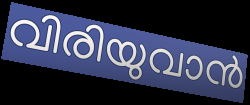
വിരിയുവാൻ